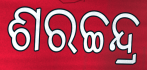
ଶରଚ୍ଚନ୍ଦ୍ର